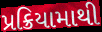
પ્રક્રિયામાથી